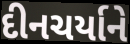
દીનચર્યાને